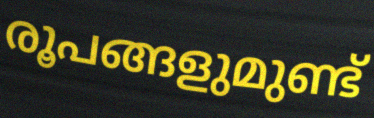
രൂപങ്ങളുമുണ്ട്